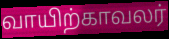
வாயிற்காவலர்